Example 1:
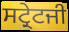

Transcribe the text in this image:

ਸਟ੍ਰੇਟਜੀ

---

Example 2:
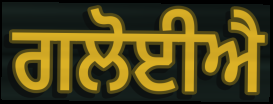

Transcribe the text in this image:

ਗਲੋਈਐ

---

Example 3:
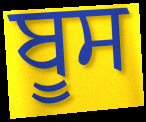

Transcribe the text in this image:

ਬੂਸ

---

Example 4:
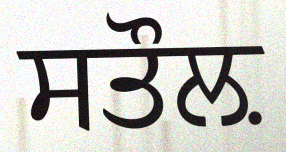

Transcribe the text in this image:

ਸਤੌਲ਼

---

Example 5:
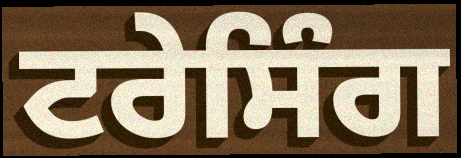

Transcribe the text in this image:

ਟਰੇਸਿੰਗ